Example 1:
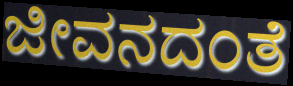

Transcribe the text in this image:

ಜೀವನದಂತೆ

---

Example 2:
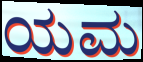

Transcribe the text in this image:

ಯಮ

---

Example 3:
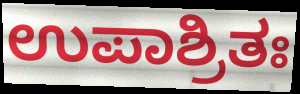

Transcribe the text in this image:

ಉಪಾಶ್ರಿತಃ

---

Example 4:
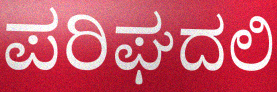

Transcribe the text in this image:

ಪರಿಘದಲಿ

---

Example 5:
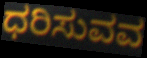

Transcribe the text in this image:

ಧರಿಸುವವ